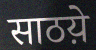
साठय़े